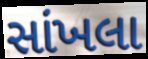
સાંખલા